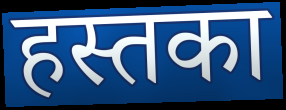
हस्तका